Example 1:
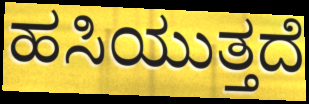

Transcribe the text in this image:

ಹಸಿಯುತ್ತದೆ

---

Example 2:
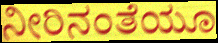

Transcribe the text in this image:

ನೀರಿನಂತೆಯೂ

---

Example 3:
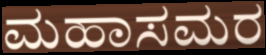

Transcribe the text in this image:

ಮಹಾಸಮರ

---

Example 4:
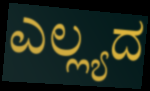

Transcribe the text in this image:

ಎಲ್ಲ್ಯದ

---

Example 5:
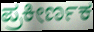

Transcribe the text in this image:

ಪ್ರಕೀರ್ಣಕ